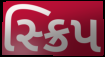
સ્ક્રિપ